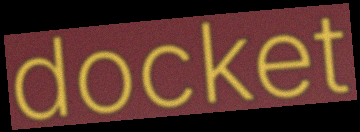
docket